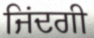
ਜਿਂਦਗੀ